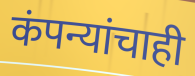
कंपन्यांचाही